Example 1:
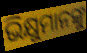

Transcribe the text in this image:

ଭିକ୍ଷୁମାନଙ୍କୁ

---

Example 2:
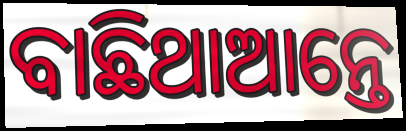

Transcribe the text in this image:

ବାଛିଥାଆନ୍ତେ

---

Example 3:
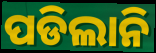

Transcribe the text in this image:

ପଡିଲାନି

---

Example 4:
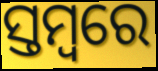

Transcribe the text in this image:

ସ୍ତମ୍ବରେ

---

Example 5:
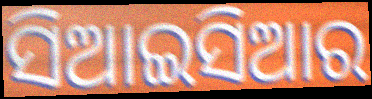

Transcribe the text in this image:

ସିଆଇସିଆର